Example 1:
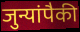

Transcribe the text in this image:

जुन्यांपैकी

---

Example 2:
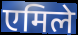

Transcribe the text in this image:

एमिले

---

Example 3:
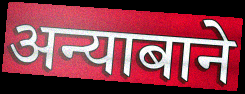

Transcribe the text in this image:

अन्याबाने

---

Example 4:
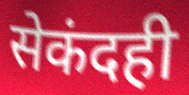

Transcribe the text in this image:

सेकंदही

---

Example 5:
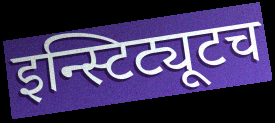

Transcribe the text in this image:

इन्स्टिट्यूटच